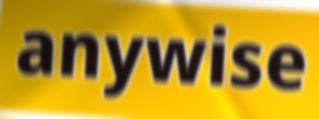
anywise